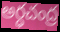
అర్ధచంద్ర